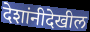
देशांनीदेखील